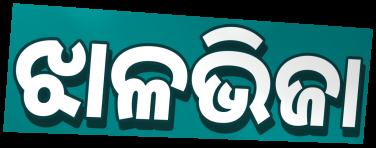
ଝାଳଭିଜା